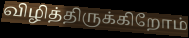
விழித்திருக்கிறோம்